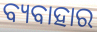
ବ୍ୟବାହାର